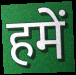
हमें